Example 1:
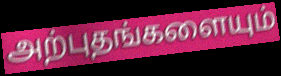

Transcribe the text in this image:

அற்புதங்களையும்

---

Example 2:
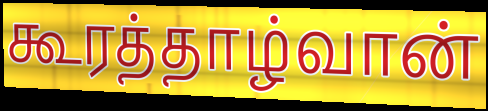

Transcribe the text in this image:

கூரத்தாழ்வான்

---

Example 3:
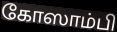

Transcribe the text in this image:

கோஸாம்பி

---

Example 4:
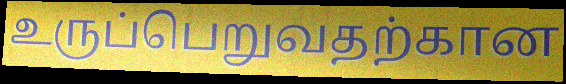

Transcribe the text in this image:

உருப்பெறுவதற்கான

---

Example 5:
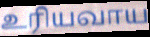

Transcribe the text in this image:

உரியவாய